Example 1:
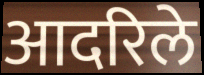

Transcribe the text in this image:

आदरिले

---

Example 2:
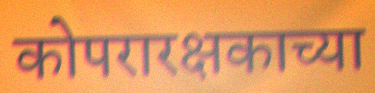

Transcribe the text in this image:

कोपरारक्षकाच्या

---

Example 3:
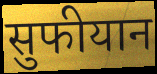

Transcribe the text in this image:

सुफीयान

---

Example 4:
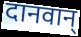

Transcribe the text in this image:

दानवान्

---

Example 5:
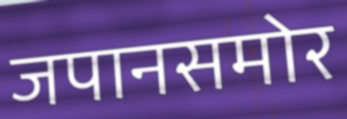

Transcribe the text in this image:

जपानसमोर